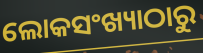
ଲୋକସଂଖ୍ୟାଠାରୁ